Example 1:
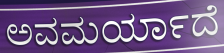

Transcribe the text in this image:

ಅವಮರ್ಯಾದೆ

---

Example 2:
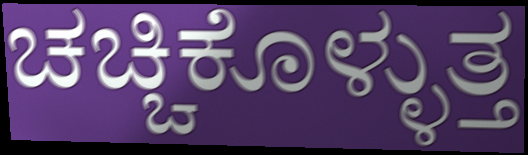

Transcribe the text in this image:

ಚಚ್ಚಿಕೊಳ್ಳುತ್ತ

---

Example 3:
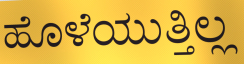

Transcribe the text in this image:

ಹೊಳೆಯುತ್ತಿಲ್ಲ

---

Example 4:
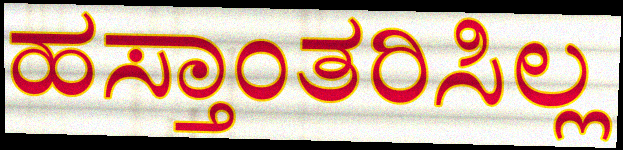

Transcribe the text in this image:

ಹಸ್ತಾಂತರಿಸಿಲ್ಲ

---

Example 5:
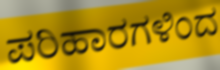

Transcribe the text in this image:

ಪರಿಹಾರಗಳಿಂದ